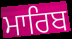
ਮਾਰਿਬ